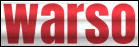
warso